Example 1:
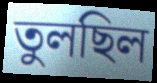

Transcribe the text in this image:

তুলছিল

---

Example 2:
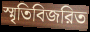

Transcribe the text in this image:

স্মৃতিবিজরিত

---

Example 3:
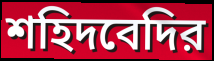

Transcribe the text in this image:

শহিদবেদির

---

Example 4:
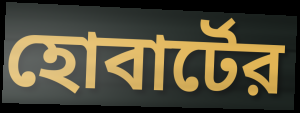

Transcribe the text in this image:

হোবার্টের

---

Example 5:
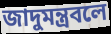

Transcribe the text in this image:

জাদুমন্ত্রবলে